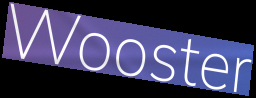
Wooster